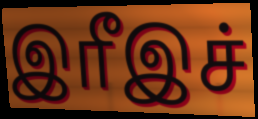
இரீஇச்